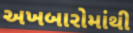
અખબારોમાંથી